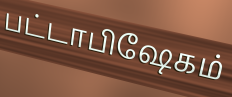
பட்டாபிஷேகம்